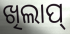
ଖିଲାପ୍